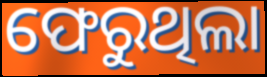
ଫେରୁଥିଲା